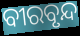
ବୀରବୃନ୍ଦ